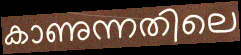
കാണുന്നതിലെ